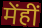
मेंहीं